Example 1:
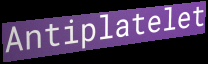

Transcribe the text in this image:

Antiplatelet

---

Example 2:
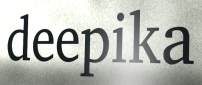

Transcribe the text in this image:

deepika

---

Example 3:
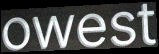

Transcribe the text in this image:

owest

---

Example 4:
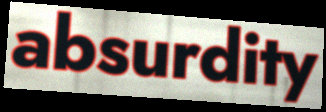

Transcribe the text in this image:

absurdity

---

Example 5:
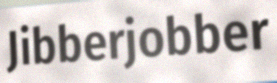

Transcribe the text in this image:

Jibberjobber